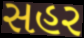
સહર